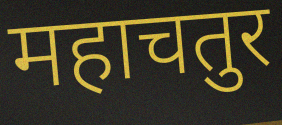
महाचतुर